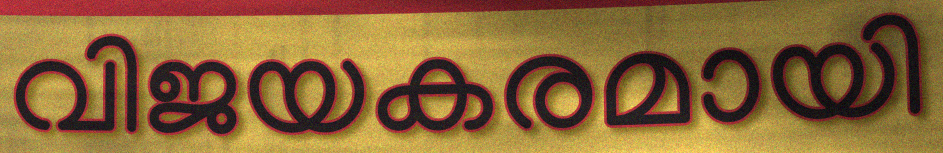
വിജയകരമായി